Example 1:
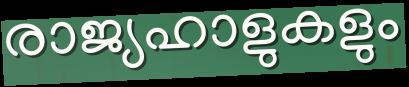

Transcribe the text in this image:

രാജ്യഹാളുകളും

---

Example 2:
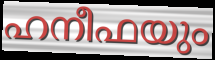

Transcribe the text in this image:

ഹനീഫയും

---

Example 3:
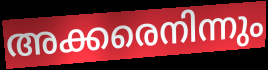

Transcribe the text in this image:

അക്കരെനിന്നും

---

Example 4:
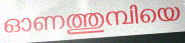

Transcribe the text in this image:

ഓണത്തുമ്പിയെ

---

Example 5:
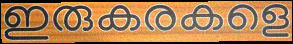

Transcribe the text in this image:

ഇരുകരകളെ